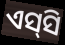
ଏସ୍‌ସି